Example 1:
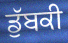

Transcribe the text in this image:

ਡੁੱਬਕੀ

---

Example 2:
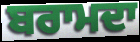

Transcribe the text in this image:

ਬਰਾਮਦਾ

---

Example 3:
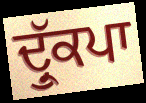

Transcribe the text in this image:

ਦ੍ਰੁੱਕਪਾ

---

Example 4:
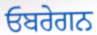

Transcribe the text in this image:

ਓਬਰੇਗਨ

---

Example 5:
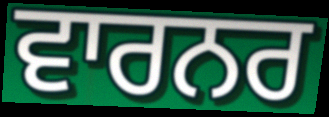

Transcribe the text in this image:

ਵਾਰਨਰ